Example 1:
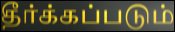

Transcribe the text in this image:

தீர்க்கப்படும்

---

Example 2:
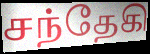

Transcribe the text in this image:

சந்தேகி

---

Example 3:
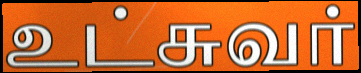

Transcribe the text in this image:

உட்சுவர்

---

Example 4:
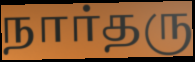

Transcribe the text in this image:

நார்தரு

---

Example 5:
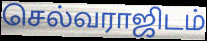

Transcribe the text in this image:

செல்வராஜிடம்